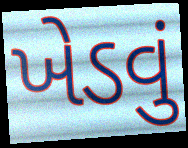
ખેડવું